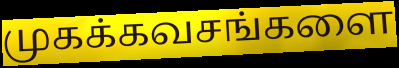
முகக்கவசங்களை